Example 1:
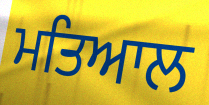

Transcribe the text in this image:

ਮਤਿਆਲ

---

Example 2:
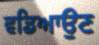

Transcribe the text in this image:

ਵਡਿਆਉਣ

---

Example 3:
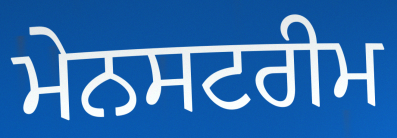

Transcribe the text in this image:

ਮੇਨਸਟਰੀਮ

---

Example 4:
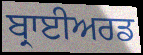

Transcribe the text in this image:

ਬ੍ਰਾਈਅਰਡ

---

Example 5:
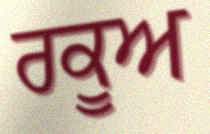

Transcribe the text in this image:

ਰਕੂਅ